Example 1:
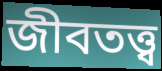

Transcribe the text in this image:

জীবতত্ত্ব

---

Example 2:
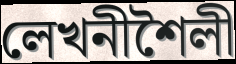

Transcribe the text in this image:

লেখনীশৈলী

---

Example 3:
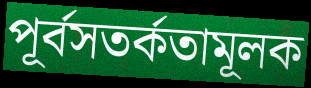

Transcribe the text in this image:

পূর্বসতর্কতামূলক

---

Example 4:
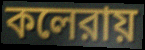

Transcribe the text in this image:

কলেরায়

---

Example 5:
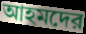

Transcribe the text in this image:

আহমদের